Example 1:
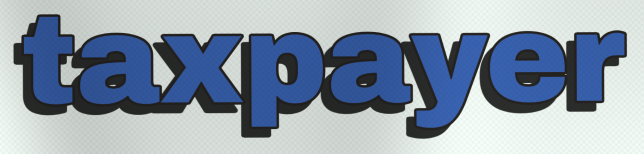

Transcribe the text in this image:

taxpayer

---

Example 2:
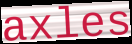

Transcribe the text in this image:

axles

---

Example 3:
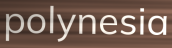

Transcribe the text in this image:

polynesia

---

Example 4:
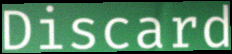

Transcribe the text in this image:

Discard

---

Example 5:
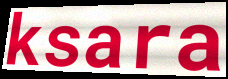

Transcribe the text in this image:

ksara